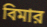
বিমার